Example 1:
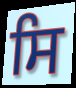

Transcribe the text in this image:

ਸਿ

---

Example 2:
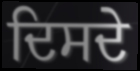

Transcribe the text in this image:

ਦਿਸਦੇ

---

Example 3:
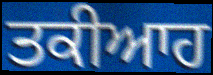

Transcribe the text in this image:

ਤਕੀਆਹ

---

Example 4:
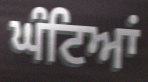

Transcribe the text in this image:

ਘੰਟਿਆਂ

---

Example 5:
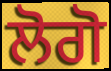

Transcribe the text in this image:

ਲੋਗੋ